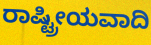
ರಾಷ್ಟ್ರೀಯವಾದಿ